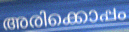
അരിക്കൊപ്പം